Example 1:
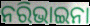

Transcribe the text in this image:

ନରିଭାଇନା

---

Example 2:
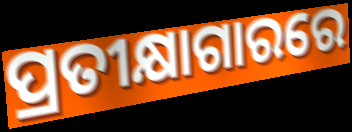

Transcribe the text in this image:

ପ୍ରତୀକ୍ଷାଗାରରେ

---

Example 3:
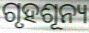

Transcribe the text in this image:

ଗୃହଶୂନ୍ୟ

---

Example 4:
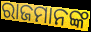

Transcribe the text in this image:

ରାଜମାନଙ୍କ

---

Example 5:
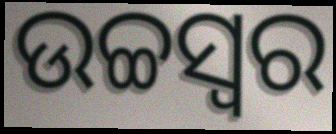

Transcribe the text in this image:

ଉଚ୍ଚସ୍ଵର